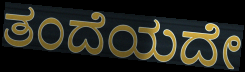
ತಂದೆಯದೇ